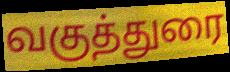
வகுத்துரை